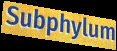
Subphylum